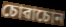
চোৱাচোন